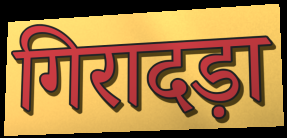
गिरादड़ा